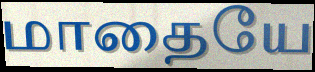
மாதையே